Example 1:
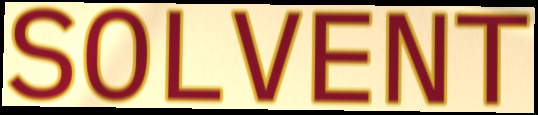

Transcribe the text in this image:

SOLVENT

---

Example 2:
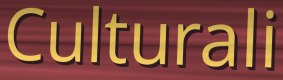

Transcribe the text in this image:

Culturali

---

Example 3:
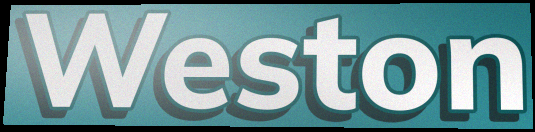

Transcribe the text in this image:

Weston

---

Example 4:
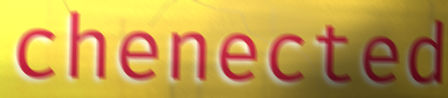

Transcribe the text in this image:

chenected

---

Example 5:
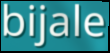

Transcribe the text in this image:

bijale